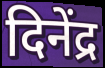
दिनेंद्र